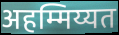
अहम्मिय्यत